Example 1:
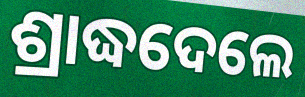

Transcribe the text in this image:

ଶ୍ରାଦ୍ଧଦେଲେ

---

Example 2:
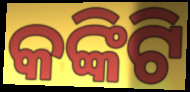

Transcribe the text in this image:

କଙ୍କିଟି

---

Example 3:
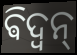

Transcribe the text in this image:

ଵିଦ୍ଵନ୍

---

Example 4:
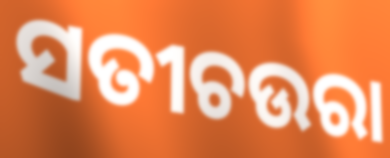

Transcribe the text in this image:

ସତୀଚଉରା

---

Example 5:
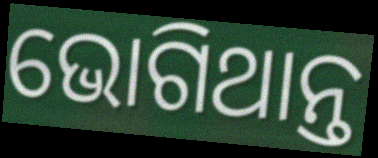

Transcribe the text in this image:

ଭୋଗିଥାନ୍ତ